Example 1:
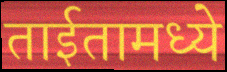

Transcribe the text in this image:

ताईतामध्ये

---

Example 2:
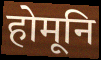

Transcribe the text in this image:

होमूनि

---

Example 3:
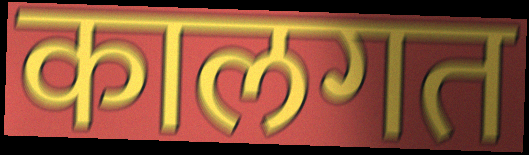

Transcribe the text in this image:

कालगत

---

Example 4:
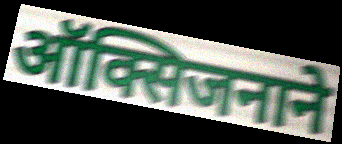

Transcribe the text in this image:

ऑक्सिजनाने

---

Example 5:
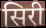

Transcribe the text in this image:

सिरी